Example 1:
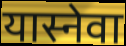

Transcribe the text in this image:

यास्नेवा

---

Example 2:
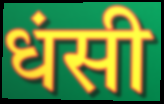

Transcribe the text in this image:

धंसी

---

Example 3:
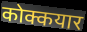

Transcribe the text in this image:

कोक्कयार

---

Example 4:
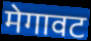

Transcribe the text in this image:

मेगावट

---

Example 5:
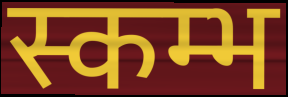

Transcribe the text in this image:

स्कम्भ